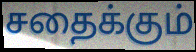
சதைக்கும்